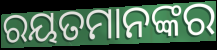
ରୟତମାନଙ୍କର